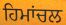
ਹਿਮਾਂਚਲ